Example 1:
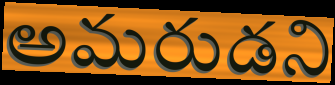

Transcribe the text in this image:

అమరుడని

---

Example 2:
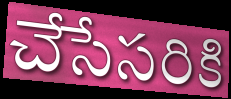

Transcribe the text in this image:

చేసేసరికి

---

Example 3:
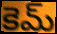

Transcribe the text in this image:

కెమ్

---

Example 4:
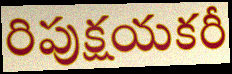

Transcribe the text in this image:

రిపుక్షయకరీ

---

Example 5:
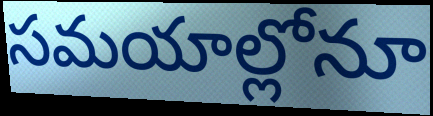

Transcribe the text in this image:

సమయాల్లోనూ